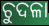
ଚୁଦଳା